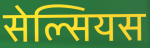
सेल्सियस